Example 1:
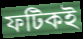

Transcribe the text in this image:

ফটিকই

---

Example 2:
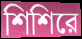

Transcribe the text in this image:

শিশিরে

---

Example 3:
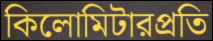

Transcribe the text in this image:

কিলোমিটারপ্রতি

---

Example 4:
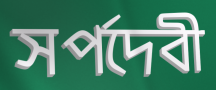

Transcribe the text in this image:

সর্পদেবী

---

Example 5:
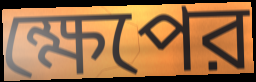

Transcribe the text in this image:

ক্ষেপের